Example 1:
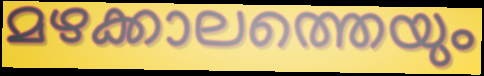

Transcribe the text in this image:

മഴക്കാലത്തെയും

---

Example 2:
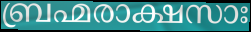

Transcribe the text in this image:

ബ്രഹ്മരാക്ഷസാഃ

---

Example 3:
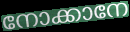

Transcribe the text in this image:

നോക്കാനേ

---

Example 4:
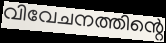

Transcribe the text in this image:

വിവേചനത്തിന്റെ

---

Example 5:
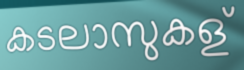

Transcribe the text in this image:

കടലാസുകള്